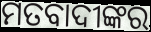
ମତବାଦୀଙ୍କର